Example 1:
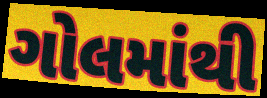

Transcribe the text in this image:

ગોલમાંથી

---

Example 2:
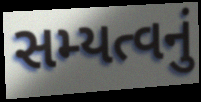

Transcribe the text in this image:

સમ્યત્વનું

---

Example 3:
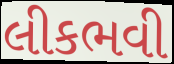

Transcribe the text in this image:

લીકભવી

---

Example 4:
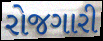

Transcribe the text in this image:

રોજગારી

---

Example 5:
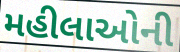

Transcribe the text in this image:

મહીલાઓની